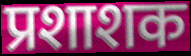
प्रशाशक